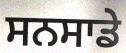
ਸਨਸਾਡੇ